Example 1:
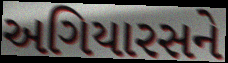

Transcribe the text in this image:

અગિયારસને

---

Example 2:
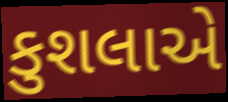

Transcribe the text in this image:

કુશલાએ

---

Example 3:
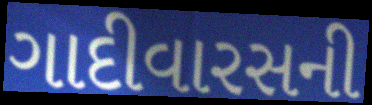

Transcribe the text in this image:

ગાદીવારસની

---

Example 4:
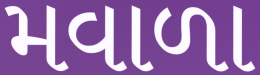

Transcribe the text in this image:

મવાળા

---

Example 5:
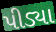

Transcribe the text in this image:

પીડ્યા